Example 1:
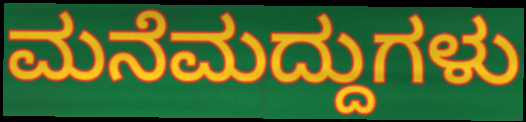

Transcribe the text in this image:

ಮನೆಮದ್ದುಗಳು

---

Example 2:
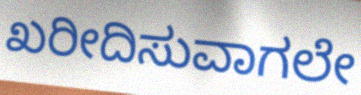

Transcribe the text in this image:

ಖರೀದಿಸುವಾಗಲೇ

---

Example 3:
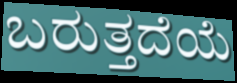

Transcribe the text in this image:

ಬರುತ್ತದೆಯೆ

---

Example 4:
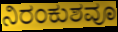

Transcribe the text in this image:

ನಿರಂಕುಶವೂ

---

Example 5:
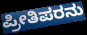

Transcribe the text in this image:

ಪ್ರೀತಿಪರನು